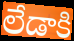
లేడాకి